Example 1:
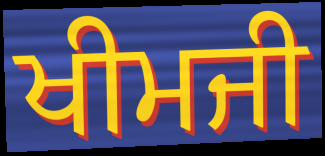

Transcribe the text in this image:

ਖੀਮਜੀ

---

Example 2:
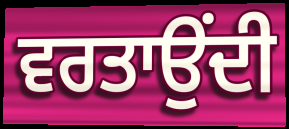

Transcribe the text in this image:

ਵਰਤਾਉਂਦੀ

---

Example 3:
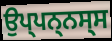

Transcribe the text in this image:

ਉਪ੍ਪਨ੍ਨਸ੍ਸ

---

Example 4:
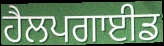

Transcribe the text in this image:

ਹੈਲਪਗਾਈਡ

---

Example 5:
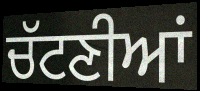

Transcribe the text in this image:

ਚੱਟਣੀਆਂ